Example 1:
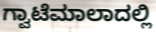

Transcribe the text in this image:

ಗ್ವಾಟೆಮಾಲಾದಲ್ಲಿ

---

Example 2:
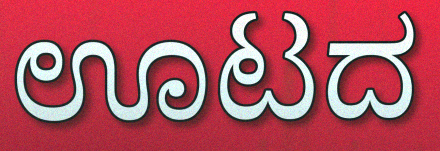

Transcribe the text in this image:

ಊಟದ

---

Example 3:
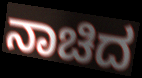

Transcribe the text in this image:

ನಾಚಿದ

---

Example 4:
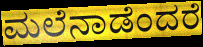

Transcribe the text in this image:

ಮಲೆನಾಡೆಂದರೆ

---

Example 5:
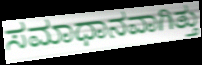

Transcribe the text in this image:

ಸಮಾಧಾನವಾಗಿತ್ತು